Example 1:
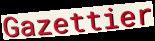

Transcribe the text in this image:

Gazettier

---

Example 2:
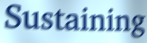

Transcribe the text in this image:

Sustaining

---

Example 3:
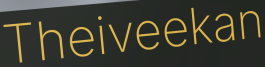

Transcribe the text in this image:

Theiveekan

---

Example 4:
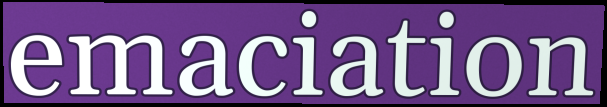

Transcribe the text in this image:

emaciation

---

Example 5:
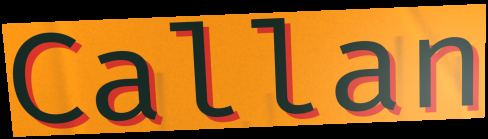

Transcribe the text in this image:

Callan